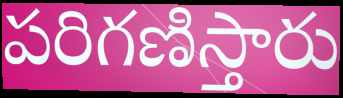
పరిగణిస్తారు